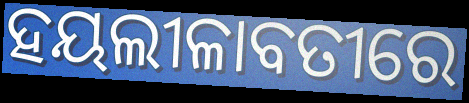
ହୟଲୀଳାବତୀରେ